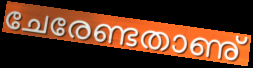
ചേരേണ്ടതാണു്